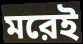
মরেই